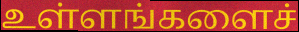
உள்ளங்களைச்